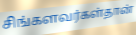
சிங்களவர்கள்தான்